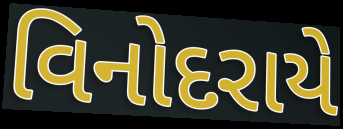
વિનોદરાયે